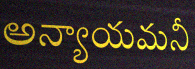
అన్యాయమనీ